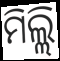
ମିଲ୍ଲି